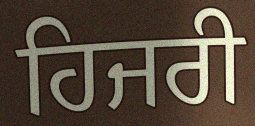
ਹਿਜਰੀ